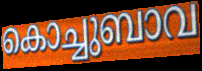
കൊച്ചുബാവ